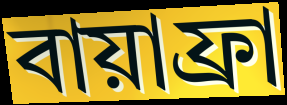
বায়াফ্রা